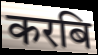
करबि